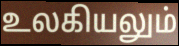
உலகியலும்